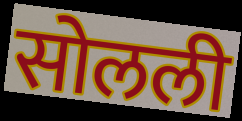
सोलली